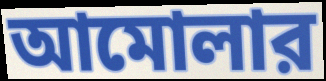
আমোলার